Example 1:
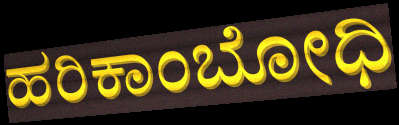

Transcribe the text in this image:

ಹರಿಕಾಂಬೋಧಿ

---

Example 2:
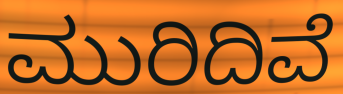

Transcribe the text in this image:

ಮುರಿದಿವೆ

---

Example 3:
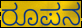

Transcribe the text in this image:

ರೂಪನ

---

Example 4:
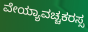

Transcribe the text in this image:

ವೇಯ್ಯಾವಚ್ಚಕರಸ್ಸ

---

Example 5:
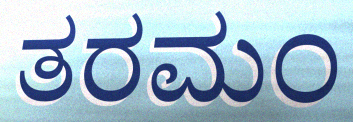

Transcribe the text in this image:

ತರಮಂ